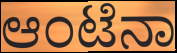
ಆಂಟೆನಾ